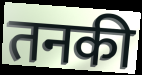
तनकी